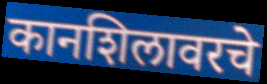
कानशिलावरचे